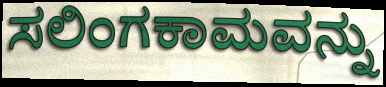
ಸಲಿಂಗಕಾಮವನ್ನು